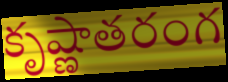
కృష్ణాతరంగ